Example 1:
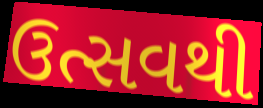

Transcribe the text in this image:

ઉત્સવથી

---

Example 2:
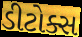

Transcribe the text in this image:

ડીટોક્સ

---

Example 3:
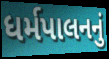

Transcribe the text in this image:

ધર્મપાલનનું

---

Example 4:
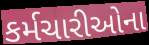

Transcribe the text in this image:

કર્મચારીઓના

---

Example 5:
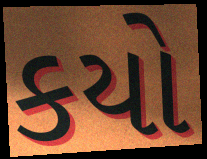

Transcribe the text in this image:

કયો